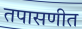
तपासणीत